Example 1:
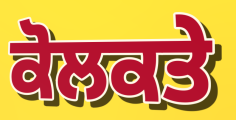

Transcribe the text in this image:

ਕੋਲਕਤੇ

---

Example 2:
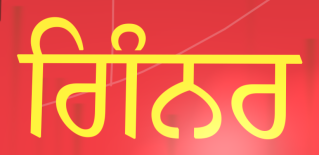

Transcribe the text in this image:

ਗਿੰਨਰ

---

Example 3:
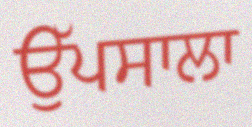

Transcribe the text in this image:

ਉੱਪਸਾਲਾ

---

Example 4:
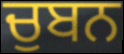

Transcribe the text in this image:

ਚੁਬਨ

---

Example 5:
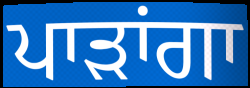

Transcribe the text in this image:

ਪਾੜਾਂਗਾ